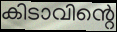
കിടാവിന്റെ